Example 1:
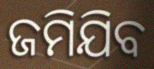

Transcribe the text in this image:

ଜମିଯିବ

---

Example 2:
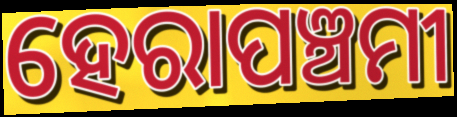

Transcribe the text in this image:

ହେରାପଞ୍ଚମୀ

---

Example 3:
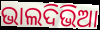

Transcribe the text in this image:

ଭାଲଦିଭିଆ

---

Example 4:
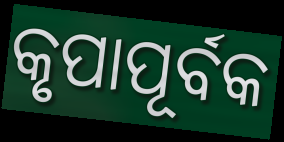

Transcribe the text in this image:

କୃପାପୂର୍ବକ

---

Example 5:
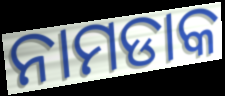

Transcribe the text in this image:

ନାମଡାକ